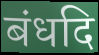
बंधदि